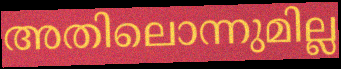
അതിലൊന്നുമില്ല